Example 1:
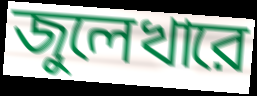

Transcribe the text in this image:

জুলেখারে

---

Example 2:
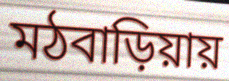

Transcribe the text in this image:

মঠবাড়িয়ায়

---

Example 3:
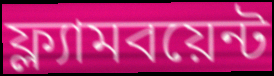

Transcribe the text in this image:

ফ্ল্যামবয়েন্ট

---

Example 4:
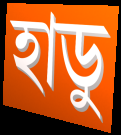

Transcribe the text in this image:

হাডু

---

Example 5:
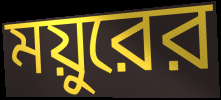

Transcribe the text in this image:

ময়ুরের